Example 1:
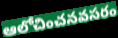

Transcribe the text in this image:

ఆలోచించనవసరం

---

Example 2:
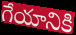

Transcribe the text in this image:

గేయానికి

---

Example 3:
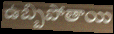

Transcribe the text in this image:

ఉబ్బిపోతాయి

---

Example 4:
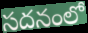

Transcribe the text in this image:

సదనంలో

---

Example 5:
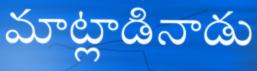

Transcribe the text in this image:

మాట్లాడినాడు